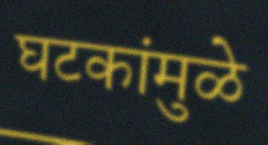
घटकांमुळे